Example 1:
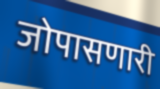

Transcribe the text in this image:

जोपासणारी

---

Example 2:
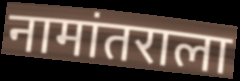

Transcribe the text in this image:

नामांतराला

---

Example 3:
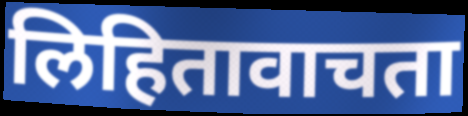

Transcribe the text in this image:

लिहितावाचता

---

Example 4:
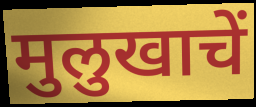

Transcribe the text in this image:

मुलुखाचें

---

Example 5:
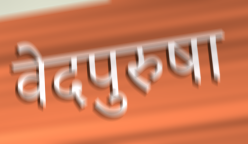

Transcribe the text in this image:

वेदपुरुषा